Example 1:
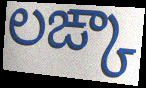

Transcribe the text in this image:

లఙ్కా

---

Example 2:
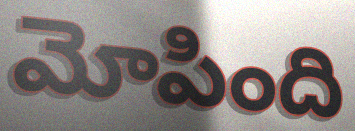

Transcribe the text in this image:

మోపింది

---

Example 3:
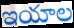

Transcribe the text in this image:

ఇయాల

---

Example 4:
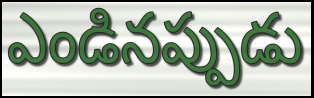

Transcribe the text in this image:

ఎండినప్పుడు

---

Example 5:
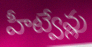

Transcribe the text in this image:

హీట్వేవ్లు